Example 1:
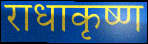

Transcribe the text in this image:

राधाकृष्ण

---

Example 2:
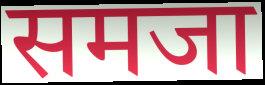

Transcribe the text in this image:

समजा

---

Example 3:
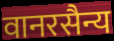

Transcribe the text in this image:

वानरसैन्य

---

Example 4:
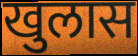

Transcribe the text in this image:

खुलास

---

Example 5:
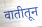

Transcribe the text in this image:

वातीतून